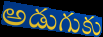
అడుగుకు